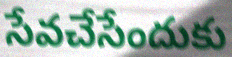
సేవచేసేందుకు